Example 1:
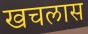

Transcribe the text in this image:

खचलास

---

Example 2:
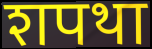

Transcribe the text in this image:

शपथा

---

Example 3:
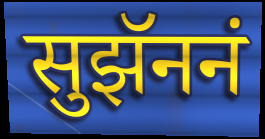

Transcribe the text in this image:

सुझॅननं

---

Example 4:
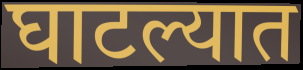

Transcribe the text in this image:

घाटल्यात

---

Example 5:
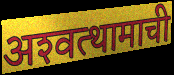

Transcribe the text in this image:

अश्वत्थामाची